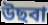
উছবা